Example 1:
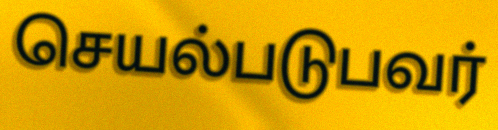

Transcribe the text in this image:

செயல்படுபவர்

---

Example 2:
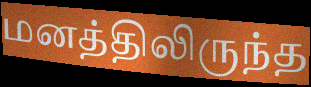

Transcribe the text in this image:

மனத்திலிருந்த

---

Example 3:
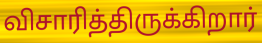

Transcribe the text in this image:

விசாரித்திருக்கிறார்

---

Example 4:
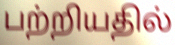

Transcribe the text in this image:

பற்றியதில்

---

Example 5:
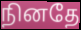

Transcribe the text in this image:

நினதே